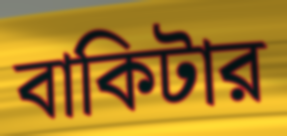
বাকিটার